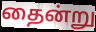
தைன்று